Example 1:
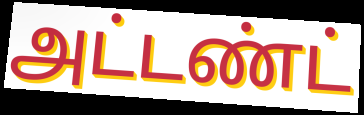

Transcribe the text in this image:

அட்டண்ட்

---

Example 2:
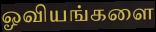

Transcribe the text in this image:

ஓவியங்களை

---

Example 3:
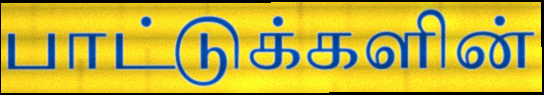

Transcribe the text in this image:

பாட்டுக்களின்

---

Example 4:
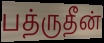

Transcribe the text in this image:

பத்ருதீன்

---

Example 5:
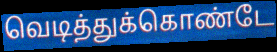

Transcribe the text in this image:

வெடித்துக்கொண்டே